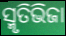
ସ୍ମୃତିଭିଜା